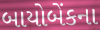
બાયોબેંકના